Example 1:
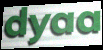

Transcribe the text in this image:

dyaa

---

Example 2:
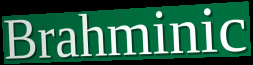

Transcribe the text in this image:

Brahminic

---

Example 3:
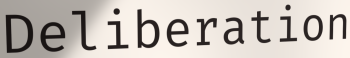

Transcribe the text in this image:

Deliberation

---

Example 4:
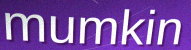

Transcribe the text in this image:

mumkin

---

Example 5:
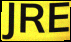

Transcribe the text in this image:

JRE